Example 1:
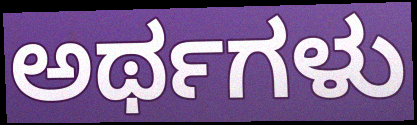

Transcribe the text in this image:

ಅರ್ಥಗಳು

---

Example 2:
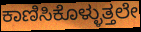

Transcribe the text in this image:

ಕಾಣಿಸಿಕೊಳ್ಳುತ್ತಲೇ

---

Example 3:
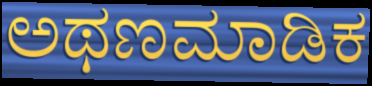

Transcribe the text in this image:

ಅಥಣಮಾಡಿಕ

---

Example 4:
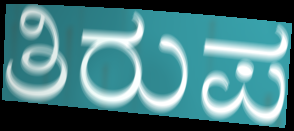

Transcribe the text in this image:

ತಿರುಪ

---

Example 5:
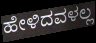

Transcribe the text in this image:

ಹೇಳಿದವಳಲ್ಲ